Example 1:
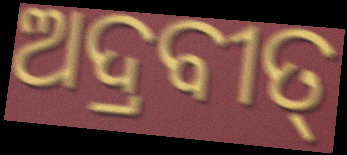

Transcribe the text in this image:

ଅଦ୍ରବୀତ୍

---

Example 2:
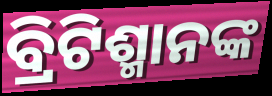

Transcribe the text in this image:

ବ୍ରିଟିଶ୍ମାନଙ୍କ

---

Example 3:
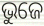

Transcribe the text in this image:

ଭୁଜେ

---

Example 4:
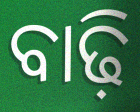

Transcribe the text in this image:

ବାଢ଼ି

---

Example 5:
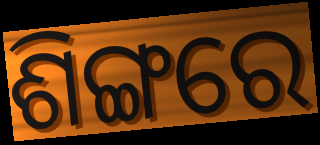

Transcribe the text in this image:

ଶିଙ୍ଗରେ